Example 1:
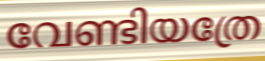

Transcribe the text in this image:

വേണ്ടിയത്രേ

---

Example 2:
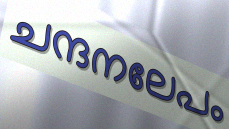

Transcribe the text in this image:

ചന്ദനലേപം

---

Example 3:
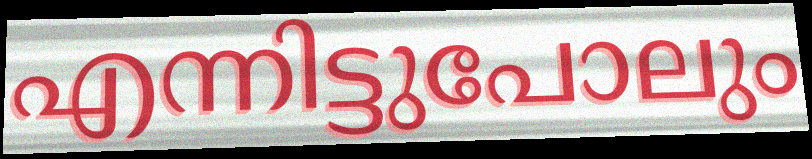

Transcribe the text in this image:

എന്നിട്ടുപോലും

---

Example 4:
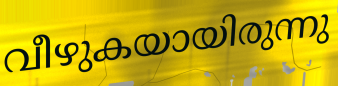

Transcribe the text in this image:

വീഴുകയായിരുന്നു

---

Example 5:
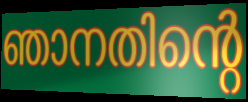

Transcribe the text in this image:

ഞാനതിന്റെ